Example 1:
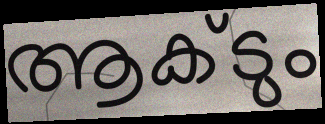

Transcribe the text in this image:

ആക്ടും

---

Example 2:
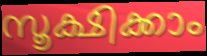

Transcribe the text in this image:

സൂക്ഷിക്കാം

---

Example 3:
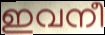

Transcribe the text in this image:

ഇവനീ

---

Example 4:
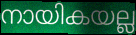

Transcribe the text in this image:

നായികയല്ല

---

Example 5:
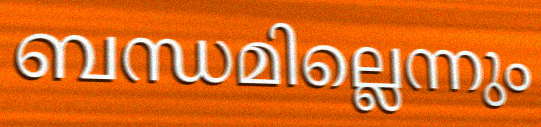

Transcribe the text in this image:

ബന്ധമില്ലെന്നും